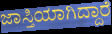
ಜಾಸ್ತಿಯಾಗಿದ್ದಾರೆ